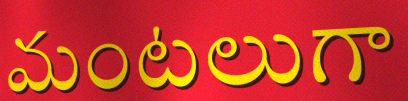
మంటలుగా